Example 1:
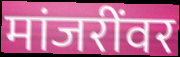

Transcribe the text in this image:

मांजरींवर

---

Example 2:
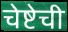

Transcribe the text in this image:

चेष्टेची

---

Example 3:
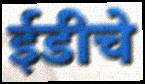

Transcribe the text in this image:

ईडीचे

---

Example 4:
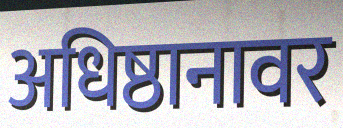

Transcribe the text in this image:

अधिष्ठानावर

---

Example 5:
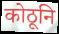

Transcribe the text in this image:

कोठूनि